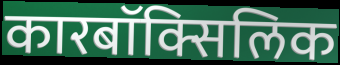
कारबॉक्सिलिक